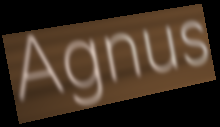
Agnus